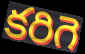
కరిగె